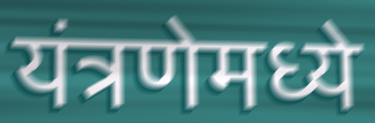
यंत्रणेमध्ये